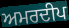
ਅਮਰਦੀਪ